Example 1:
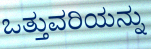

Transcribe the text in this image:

ಒತ್ತುವರಿಯನ್ನು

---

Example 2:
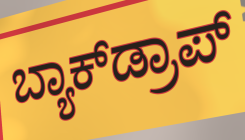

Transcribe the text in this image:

ಬ್ಯಾಕ್‌ಡ್ರಾಪ್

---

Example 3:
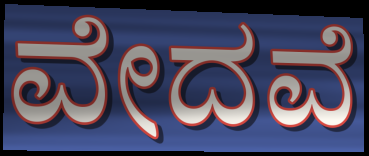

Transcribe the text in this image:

ವೇದವೆ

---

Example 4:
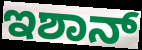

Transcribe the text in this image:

ಇಶಾನ್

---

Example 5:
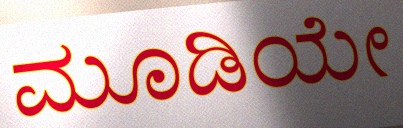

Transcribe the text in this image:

ಮೂಡಿಯೇ